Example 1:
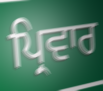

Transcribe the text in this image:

ਪ੍ਰਿਵਾਰ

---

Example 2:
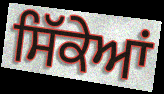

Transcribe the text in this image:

ਸਿੱਕੇਆਂ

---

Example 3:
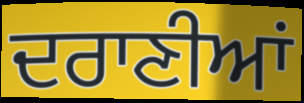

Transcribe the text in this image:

ਦਰਾਣੀਆਂ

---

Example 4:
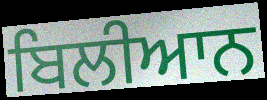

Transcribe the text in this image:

ਬਿਲੀਆਨ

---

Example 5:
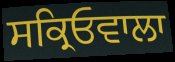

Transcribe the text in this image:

ਸਕ੍ਰਿਓਵਾਲਾ